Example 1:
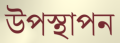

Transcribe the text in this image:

উপস্থাপন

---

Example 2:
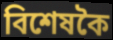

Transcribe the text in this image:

বিশেষকৈ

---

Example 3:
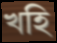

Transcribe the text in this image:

খহি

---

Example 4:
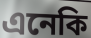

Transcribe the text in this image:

এনেকি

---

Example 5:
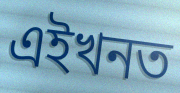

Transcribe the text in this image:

এইখনত